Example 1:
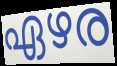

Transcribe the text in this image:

ഏഴര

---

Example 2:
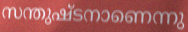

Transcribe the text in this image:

സന്തുഷ്ടനാണെന്നു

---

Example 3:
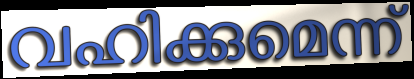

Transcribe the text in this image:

വഹിക്കുമെന്ന്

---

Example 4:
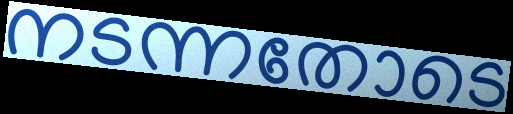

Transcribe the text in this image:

നടന്നതോടെ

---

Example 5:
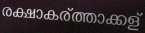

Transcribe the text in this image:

രക്ഷാകര്ത്താക്കള്